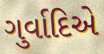
ગુર્વાદિએ